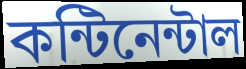
কন্টিনেন্টাল